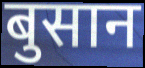
बुसान